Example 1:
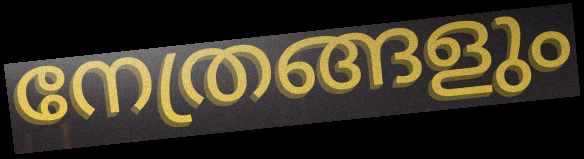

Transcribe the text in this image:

നേത്രങ്ങളും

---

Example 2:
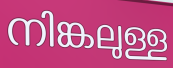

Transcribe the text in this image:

നിങ്കലുള്ള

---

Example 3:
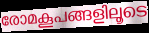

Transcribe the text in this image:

രോമകൂപങ്ങളിലൂടെ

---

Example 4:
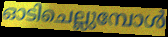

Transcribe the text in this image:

ഓടിചെല്ലുമ്പോൾ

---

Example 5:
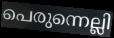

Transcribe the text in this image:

പെരുന്നെല്ലി